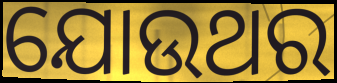
ଯୋଉଥର